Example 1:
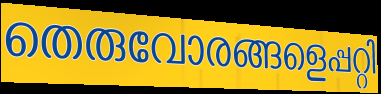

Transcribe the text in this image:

തെരുവോരങ്ങളെപ്പറ്റി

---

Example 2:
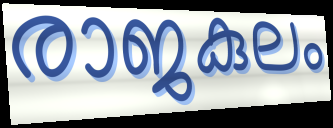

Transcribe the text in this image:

രാജകുലം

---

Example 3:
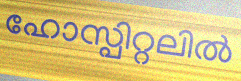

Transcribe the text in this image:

ഹോസ്പിറ്റലിൽ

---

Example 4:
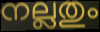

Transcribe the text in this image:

നല്ലതും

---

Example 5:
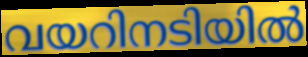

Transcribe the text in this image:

വയറിനടിയിൽ